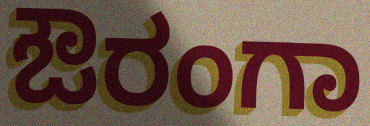
ಔರಂಗಾ